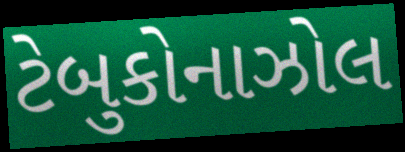
ટેબુકોનાઝોલ